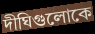
দীঘিগুলোকে